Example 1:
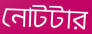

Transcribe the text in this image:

নোটটার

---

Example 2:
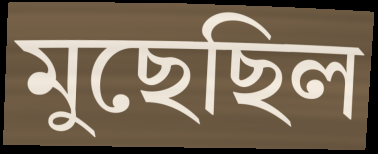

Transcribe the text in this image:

মুছেছিল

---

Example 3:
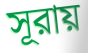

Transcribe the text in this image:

সূরায়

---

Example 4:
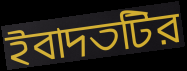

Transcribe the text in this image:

ইবাদতটির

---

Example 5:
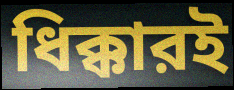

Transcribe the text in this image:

ধিক্কারই